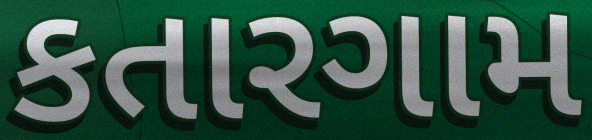
કતારગામ